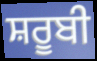
ਸ਼ਰੂਬੀ